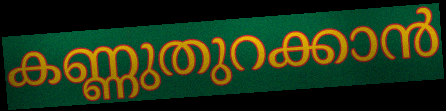
കണ്ണുതുറക്കാൻ